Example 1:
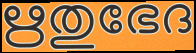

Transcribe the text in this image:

ഋതുഭേദ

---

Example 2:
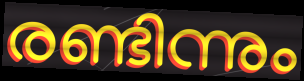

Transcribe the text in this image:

രണ്ടിന്നും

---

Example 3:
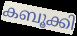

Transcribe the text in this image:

കബൂക്കി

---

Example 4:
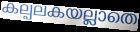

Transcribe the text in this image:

കല്പലകയല്ലാതെ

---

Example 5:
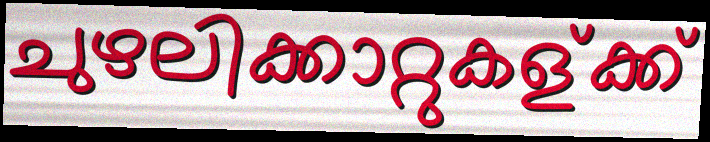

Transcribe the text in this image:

ചുഴലിക്കാറ്റുകള്ക്ക്